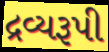
દ્રવ્યરૂપી